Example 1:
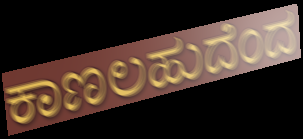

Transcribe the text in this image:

ಕಾಣಲಹುದೆಂದ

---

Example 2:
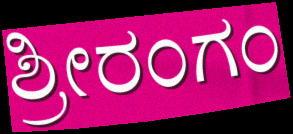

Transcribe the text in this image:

ಶ್ರೀರಂಗಂ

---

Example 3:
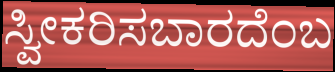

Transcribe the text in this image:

ಸ್ವೀಕರಿಸಬಾರದೆಂಬ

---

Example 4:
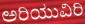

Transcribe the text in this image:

ಅರಿಯುವಿರಿ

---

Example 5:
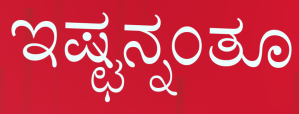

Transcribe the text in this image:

ಇಷ್ಟನ್ನಂತೂ